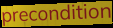
precondition